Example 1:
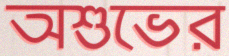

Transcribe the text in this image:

অশুভের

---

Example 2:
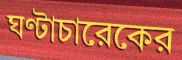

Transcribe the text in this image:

ঘণ্টাচারেকের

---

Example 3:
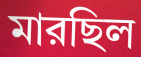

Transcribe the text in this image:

মারছিল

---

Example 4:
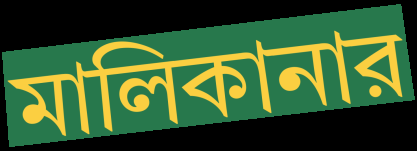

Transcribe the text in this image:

মালিকানার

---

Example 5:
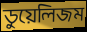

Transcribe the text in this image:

ডুয়েলিজম